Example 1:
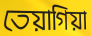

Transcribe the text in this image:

তেয়াগিয়া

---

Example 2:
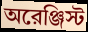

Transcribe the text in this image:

অরেঞ্জিস্ট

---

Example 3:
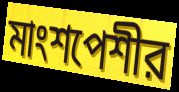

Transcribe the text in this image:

মাংশপেশীর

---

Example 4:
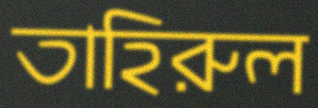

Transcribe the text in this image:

তাহিরুল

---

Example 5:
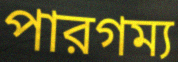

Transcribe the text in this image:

পারগম্য